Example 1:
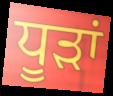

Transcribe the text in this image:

ਧੂਡ਼ਾਂ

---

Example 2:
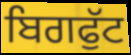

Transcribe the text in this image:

ਬਿਗਫੁੱਟ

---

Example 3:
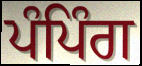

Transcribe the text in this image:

ਪੰਪਿੰਗ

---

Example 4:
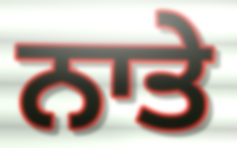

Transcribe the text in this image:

ਨਾਤੇ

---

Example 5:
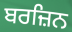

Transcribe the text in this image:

ਬਰਜ਼ਿਨ